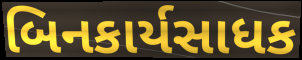
બિનકાર્યસાધક